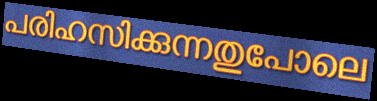
പരിഹസിക്കുന്നതുപോലെ